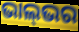
ଭାଲ୍‌ଭର